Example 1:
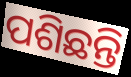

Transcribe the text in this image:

ପଶିଛନ୍ତି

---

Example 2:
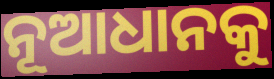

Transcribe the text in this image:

ନୂଆଧାନକୁ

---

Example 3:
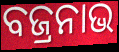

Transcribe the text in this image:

ବଜ୍ରନାଭ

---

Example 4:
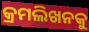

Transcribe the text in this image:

କ୍ରମଲିଖନକୁ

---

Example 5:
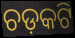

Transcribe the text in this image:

ଚଡ଼କଟି